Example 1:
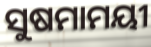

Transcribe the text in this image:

ସୁଷମାମୟୀ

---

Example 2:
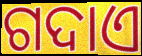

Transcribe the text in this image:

ଗଦାଏ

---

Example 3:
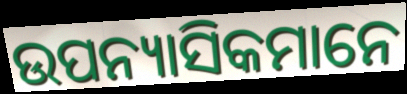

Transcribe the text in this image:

ଉପନ୍ୟାସିକମାନେ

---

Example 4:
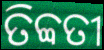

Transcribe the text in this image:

ତିବ୍ବତୀ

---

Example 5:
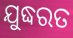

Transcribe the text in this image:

ଯୁଦ୍ଧରତ